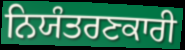
ਨਿਯੰਤਰਣਕਾਰੀ